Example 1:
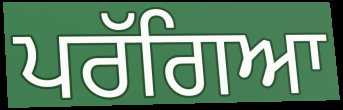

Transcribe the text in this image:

ਪਰੱਗਿਆ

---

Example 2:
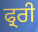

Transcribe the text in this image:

ਫ੍ਰਰੀ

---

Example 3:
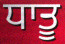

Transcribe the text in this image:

ਧਾਤੂ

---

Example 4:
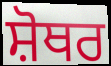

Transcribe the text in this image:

ਸ਼ੋਥਰ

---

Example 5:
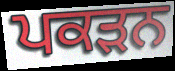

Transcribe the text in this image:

ਪਕੜਨ